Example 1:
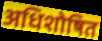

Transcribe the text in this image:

अधिशोषित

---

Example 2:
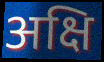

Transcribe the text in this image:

अक्षि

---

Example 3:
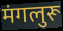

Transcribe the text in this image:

मंगलुरू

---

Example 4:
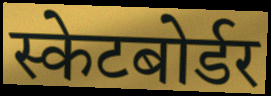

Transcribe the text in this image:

स्केटबोर्डर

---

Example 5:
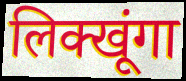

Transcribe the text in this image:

लिक्खूंगा